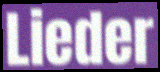
Lieder